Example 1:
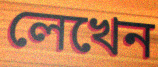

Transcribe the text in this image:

লেখেন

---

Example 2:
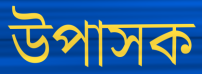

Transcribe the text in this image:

উপাসক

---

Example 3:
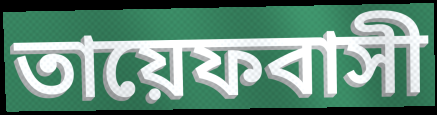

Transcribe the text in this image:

তায়েফবাসী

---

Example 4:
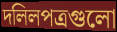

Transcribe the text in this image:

দলিলপত্রগুলো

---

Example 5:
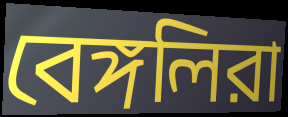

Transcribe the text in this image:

বেঙ্গলিরা